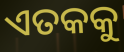
ଏତକକୁ